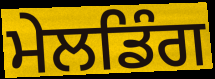
ਮੇਲਡਿੰਗ